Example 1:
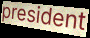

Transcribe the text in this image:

president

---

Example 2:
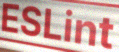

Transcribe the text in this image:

ESLint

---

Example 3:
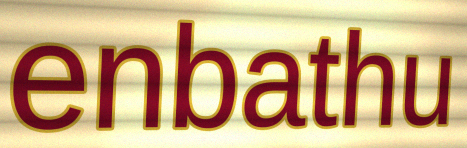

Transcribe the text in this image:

enbathu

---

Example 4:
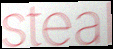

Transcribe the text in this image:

steal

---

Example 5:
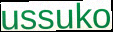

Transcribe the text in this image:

ussuko